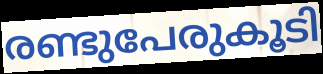
രണ്ടുപേരുകൂടി